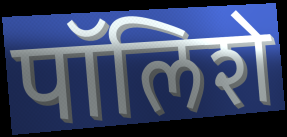
पॉलिशे